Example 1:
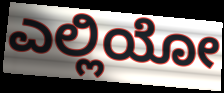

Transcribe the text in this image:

ಎಲ್ಲಿಯೋ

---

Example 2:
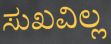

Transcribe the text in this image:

ಸುಖವಿಲ್ಲ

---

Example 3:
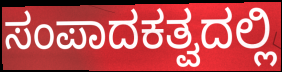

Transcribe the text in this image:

ಸಂಪಾದಕತ್ವದಲ್ಲಿ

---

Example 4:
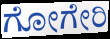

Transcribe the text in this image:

ಗೋಗೇರಿ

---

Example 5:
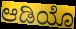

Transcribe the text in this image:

ಆಡಿಯೊ